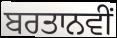
ਬਰਤਾਨਵੀਂ